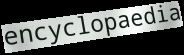
encyclopaedia